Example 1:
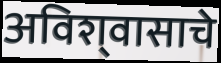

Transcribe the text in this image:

अविश्वासाचे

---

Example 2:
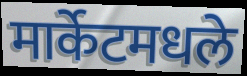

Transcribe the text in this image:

मार्केटमधले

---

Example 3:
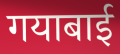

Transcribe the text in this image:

गयाबाई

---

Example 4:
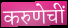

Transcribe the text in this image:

करुणेचीं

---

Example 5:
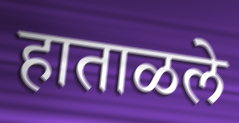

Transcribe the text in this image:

हाताळले